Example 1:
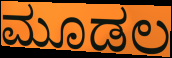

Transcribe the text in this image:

ಮೂಡಲ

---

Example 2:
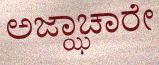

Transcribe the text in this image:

ಅಜ್ಝಾಚಾರೇ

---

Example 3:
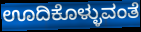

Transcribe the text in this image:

ಊದಿಕೊಳ್ಳುವಂತೆ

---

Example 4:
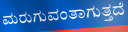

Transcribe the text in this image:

ಮರುಗುವಂತಾಗುತ್ತದೆ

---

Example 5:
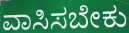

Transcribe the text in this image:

ವಾಸಿಸಬೇಕು